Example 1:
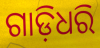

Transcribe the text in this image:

ଗାଡ଼ିଧରି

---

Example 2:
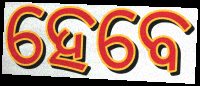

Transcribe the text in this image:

ହେବେ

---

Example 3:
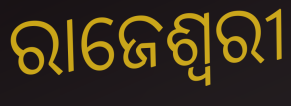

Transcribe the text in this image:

ରାଜେଶ୍ଵରୀ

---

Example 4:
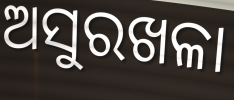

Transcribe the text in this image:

ଅସୁରଖଳା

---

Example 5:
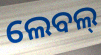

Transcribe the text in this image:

ଲେବଲ୍